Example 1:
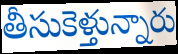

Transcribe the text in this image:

తీసుకెళ్తున్నారు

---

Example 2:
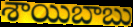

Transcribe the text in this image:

శాయిబాబు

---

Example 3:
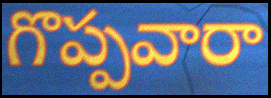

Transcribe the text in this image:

గొప్పవారా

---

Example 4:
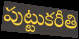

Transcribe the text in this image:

పుట్టుకరీతి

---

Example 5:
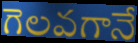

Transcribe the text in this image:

గెలవగానే